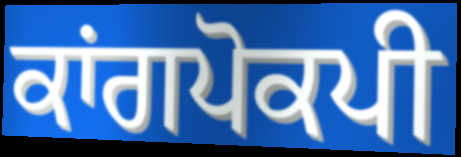
ਕਾਂਗਪੋਕਪੀ